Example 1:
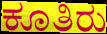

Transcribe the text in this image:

ಕೂತಿರು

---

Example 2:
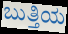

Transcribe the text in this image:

ಬುತ್ತಿಯ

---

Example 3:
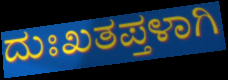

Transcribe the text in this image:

ದುಃಖತಪ್ತಳಾಗಿ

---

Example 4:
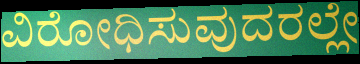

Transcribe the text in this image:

ವಿರೋಧಿಸುವುದರಲ್ಲೇ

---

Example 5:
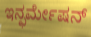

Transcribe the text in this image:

ಇನ್ಫರ್ಮೇಷನ್